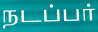
நடப்பர்